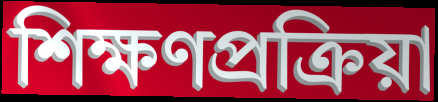
শিক্ষণপ্রক্রিয়া